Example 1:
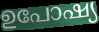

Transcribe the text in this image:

ഉപോഷ്യ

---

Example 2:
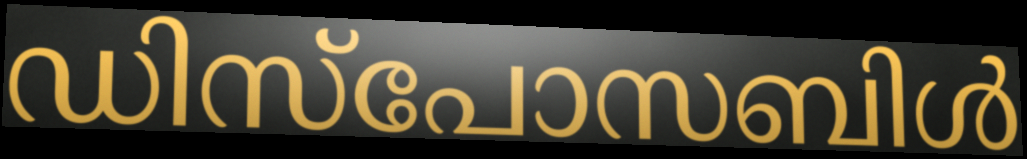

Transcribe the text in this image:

ഡിസ്പോസബിൾ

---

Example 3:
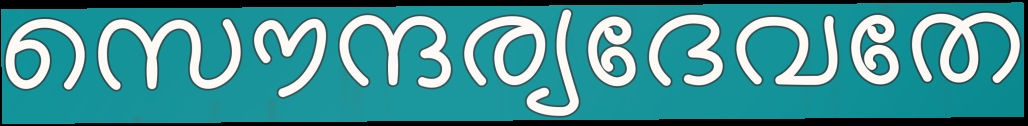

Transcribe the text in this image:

സൌന്ദര്യദേവതേ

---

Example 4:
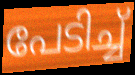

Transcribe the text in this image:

പേടിച്ച്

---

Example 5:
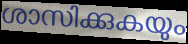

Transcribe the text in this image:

ശാസിക്കുകയും